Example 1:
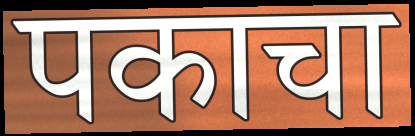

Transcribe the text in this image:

पकाचा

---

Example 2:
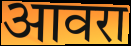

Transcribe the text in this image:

आवरा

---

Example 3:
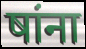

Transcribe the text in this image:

षांना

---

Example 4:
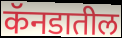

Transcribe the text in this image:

कॅनडातील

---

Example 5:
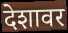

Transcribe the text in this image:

देशावर